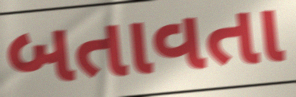
બતાવતા